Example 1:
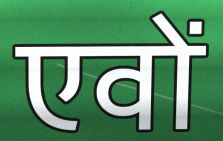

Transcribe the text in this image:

एवों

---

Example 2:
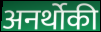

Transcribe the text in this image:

अनर्थोकी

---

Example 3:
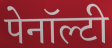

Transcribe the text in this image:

पेनॉल्टी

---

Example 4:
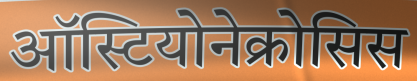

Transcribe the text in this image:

ऑस्टियोनेक्रोसिस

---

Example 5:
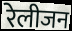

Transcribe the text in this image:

रेलीजन